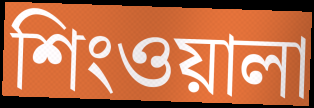
শিংওয়ালা